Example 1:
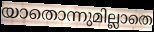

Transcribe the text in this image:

യാതൊന്നുമില്ലാതെ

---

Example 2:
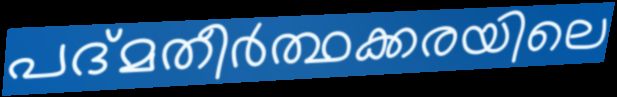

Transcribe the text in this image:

പദ്മതീർത്ഥക്കരയിലെ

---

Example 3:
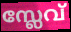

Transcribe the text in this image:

സ്ലേവ്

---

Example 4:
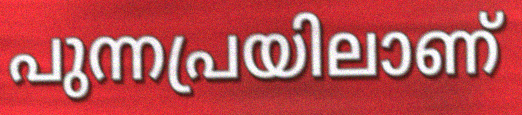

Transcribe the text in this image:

പുന്നപ്രയിലാണ്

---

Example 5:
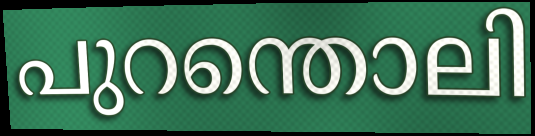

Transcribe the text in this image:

പുറന്തൊലി